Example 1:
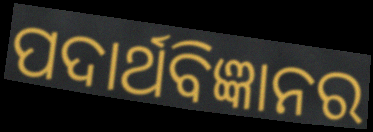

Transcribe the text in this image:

ପଦାର୍ଥବିଜ୍ଞାନର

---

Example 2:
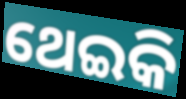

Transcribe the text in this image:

ଥେଇକି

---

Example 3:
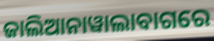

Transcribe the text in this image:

ଜାଲିଆନାୱାଲାବାଗରେ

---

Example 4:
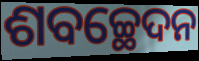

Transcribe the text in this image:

ଶବଚ୍ଛେଦନ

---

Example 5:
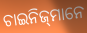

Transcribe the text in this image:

ଚାଇନିଜ୍‍ମାନେ